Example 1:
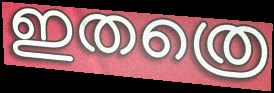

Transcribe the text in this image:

ഇതത്രെ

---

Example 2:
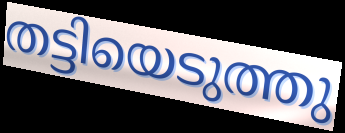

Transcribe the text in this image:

തട്ടിയെടുത്തു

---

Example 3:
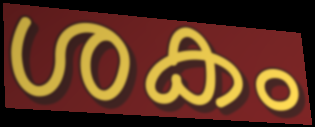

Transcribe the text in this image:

ശകം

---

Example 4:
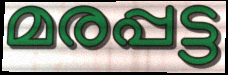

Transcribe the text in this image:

മരപ്പട്ട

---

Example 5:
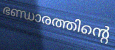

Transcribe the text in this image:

ഭണ്ഡാരത്തിന്റെ